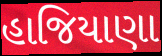
હાજિયાણા